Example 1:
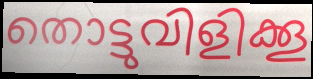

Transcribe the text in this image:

തൊട്ടുവിളിക്കൂ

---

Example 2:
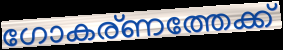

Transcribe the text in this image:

ഗോകര്ണത്തേക്ക്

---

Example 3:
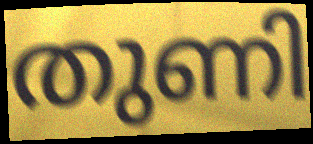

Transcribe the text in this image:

തുണി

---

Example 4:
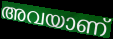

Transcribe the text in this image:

അവയാണ്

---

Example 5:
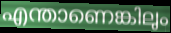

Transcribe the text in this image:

എന്താണെങ്കിലും